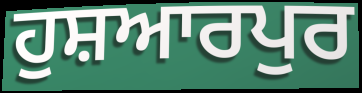
ਹੁਸ਼ਆਰਪੁਰ